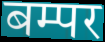
बम्पर